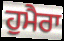
ਹੁਮੈਰਾ